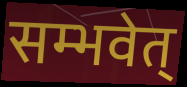
सम्भवेत्